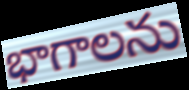
భాగాలను